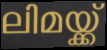
ലിമയ്ക്ക്